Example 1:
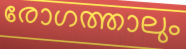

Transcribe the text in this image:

രോഗത്താലും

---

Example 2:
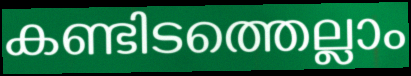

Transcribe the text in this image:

കണ്ടിടത്തെല്ലാം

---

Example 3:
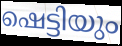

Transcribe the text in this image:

ഷെട്ടിയും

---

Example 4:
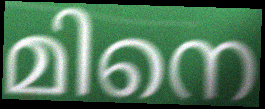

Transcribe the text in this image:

മിനെ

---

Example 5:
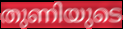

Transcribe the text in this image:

തുണിയുടെ